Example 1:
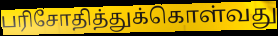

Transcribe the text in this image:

பரிசோதித்துக்கொள்வது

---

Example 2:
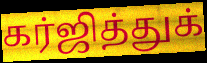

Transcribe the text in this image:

கர்ஜித்துக்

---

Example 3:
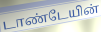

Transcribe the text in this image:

டாண்டேயின்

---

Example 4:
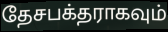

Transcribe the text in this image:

தேசபக்தராகவும்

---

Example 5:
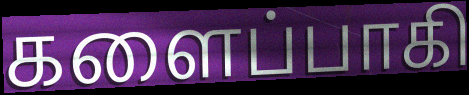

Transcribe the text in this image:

களைப்பாகி